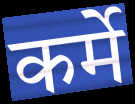
कर्मे